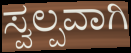
ಸ್ವಲ್ಪವಾಗಿ